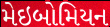
મેઇબોમિયન